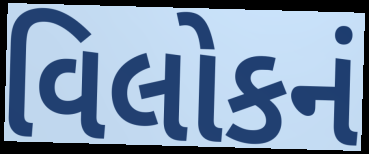
વિલોકનં